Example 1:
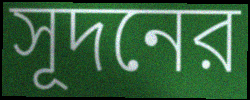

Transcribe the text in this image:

সূদনের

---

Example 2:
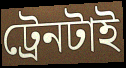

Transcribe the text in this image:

ট্রেনটাই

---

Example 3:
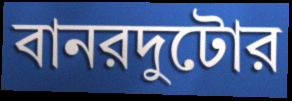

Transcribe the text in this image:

বানরদুটোর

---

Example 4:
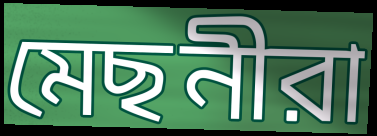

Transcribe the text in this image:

মেছনীরা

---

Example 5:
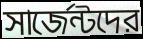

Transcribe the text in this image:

সার্জেন্টদের